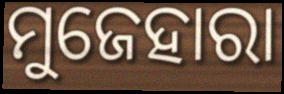
ମୁଜେହାରା